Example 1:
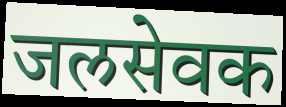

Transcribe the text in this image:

जलसेवक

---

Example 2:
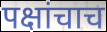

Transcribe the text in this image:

पक्षांचाच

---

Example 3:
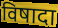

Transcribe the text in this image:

विषादा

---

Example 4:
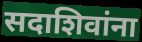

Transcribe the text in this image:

सदाशिवांना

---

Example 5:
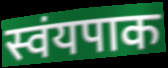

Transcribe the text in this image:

स्वंयपाक